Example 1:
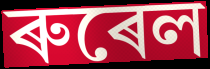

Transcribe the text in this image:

ৰুৰেল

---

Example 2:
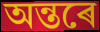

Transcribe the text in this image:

অন্তৰে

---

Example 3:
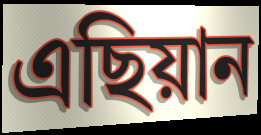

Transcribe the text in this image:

এছিয়ান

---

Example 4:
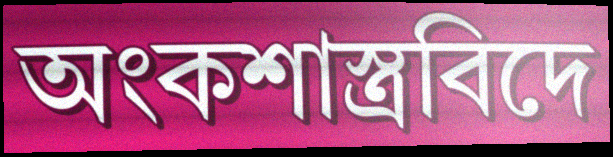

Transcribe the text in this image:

অংকশাস্ত্ৰবিদে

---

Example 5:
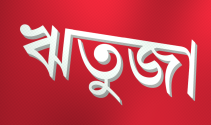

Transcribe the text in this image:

ঋতুজা